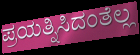
ಪ್ರಯತ್ನಿಸಿದಂತೆಲ್ಲ